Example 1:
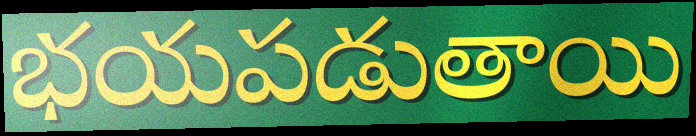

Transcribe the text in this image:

భయపడుతాయి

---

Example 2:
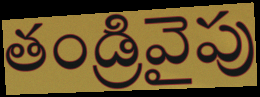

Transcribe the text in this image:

తండ్రివైపు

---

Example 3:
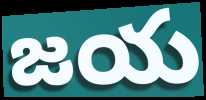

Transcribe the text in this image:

జయ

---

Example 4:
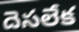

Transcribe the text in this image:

దెసలేక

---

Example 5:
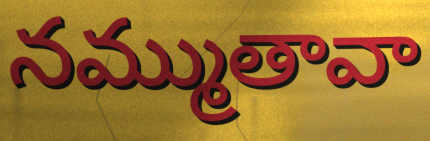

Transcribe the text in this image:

నమ్ముతావా